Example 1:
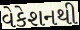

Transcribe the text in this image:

વેકેશનથી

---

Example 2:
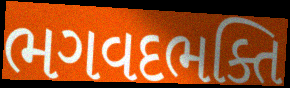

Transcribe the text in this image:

ભગવદભક્તિ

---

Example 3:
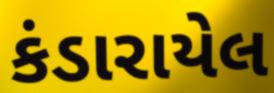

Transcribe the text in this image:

કંડારાયેલ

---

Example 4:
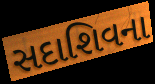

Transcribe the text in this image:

સદાશિવના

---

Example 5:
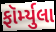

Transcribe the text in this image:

ફૉર્મ્યુલા